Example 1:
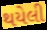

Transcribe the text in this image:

થયેલી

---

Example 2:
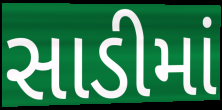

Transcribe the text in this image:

સાડીમાં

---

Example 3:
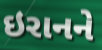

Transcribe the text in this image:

ઇરાનને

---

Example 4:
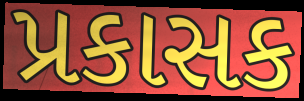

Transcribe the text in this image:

પ્રકાસક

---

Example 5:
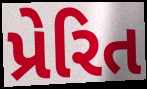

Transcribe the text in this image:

પ્રેરિત